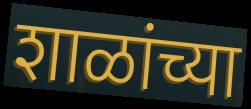
शाळांच्या